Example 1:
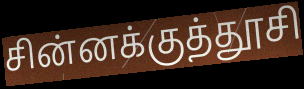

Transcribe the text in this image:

சின்னக்குத்தூசி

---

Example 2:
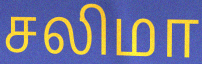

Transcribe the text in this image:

சலிமா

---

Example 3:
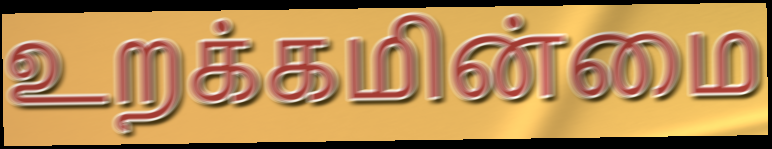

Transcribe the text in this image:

உறக்கமின்மை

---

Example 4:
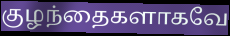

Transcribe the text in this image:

குழந்தைகளாகவே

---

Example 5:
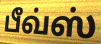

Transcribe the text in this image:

பீவ்ஸ்